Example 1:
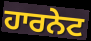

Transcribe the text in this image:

ਹਾਰਨੇਟ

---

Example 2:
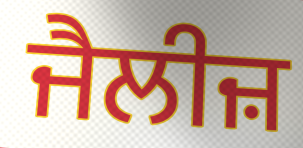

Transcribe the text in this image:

ਜੈਲੀਜ਼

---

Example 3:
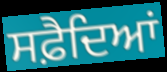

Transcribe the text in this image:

ਸਫ਼ੈਦਿਆਂ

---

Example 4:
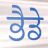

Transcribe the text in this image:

ਭੈਡੇ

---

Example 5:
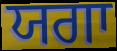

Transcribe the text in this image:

ਯਗਾ